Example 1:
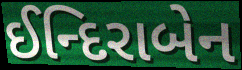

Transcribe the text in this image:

ઈન્દિરાબેન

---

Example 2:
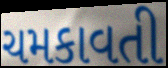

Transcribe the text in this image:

ચમકાવતી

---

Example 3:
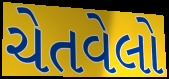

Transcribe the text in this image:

ચેતવેલો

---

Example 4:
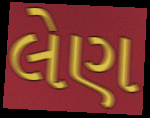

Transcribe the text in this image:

લેણ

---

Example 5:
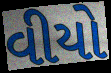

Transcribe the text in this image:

વીયો